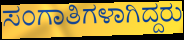
ಸಂಗಾತಿಗಳಾಗಿದ್ದರು